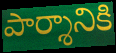
పార్శానికి